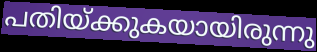
പതിയ്ക്കുകയായിരുന്നു